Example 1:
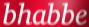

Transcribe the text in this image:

bhabbe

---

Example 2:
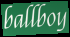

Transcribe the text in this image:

ballboy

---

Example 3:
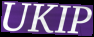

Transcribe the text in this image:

UKIP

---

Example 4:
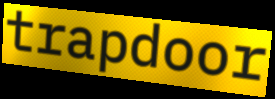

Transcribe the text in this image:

trapdoor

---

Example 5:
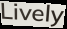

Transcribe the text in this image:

Lively